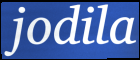
jodila